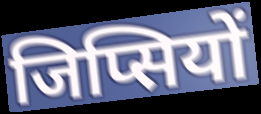
जिप्सियों